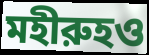
মহীরুহও